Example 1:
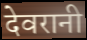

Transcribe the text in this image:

देवरानी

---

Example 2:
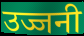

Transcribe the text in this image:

उज्जनी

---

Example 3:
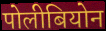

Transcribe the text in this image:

पोलीबियोन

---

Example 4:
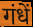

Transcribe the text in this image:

गंधें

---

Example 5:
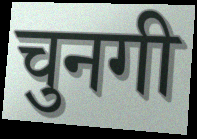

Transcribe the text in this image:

चुनगी